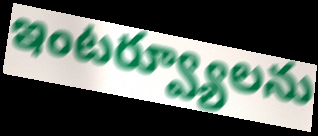
ఇంటర్వ్యూలను